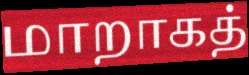
மாறாகத்